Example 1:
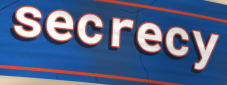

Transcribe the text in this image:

secrecy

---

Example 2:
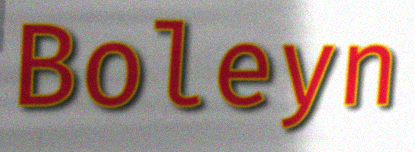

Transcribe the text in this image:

Boleyn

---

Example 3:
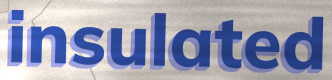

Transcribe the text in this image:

insulated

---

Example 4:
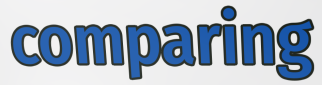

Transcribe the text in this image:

comparing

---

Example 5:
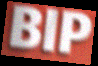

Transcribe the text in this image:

BIP